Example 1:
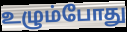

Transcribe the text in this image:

உழும்போது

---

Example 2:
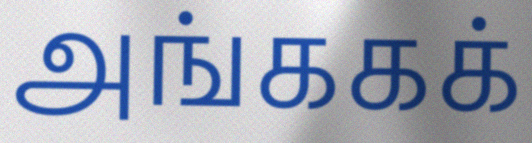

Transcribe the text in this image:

அங்ககக்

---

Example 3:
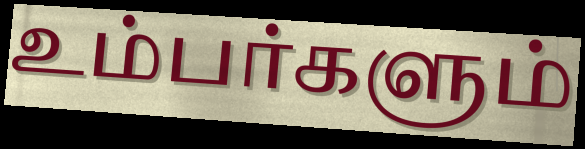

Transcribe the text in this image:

உம்பர்களும்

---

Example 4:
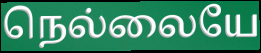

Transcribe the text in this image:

நெல்லையே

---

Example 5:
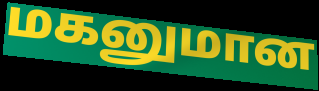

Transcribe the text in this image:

மகனுமான